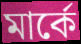
মাৰ্কে